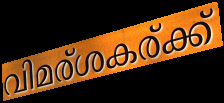
വിമര്ശകര്ക്ക്